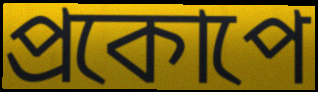
প্রকোপে